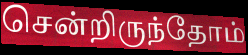
சென்றிருந்தோம்